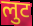
लुट